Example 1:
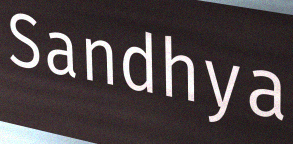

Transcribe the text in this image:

Sandhya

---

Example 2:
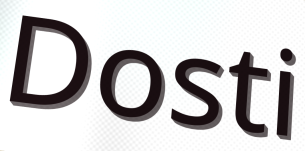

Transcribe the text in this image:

Dosti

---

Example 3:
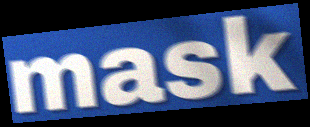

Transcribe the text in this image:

mask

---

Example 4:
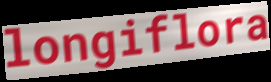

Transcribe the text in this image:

longiflora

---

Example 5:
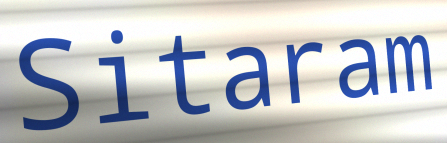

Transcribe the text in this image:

Sitaram